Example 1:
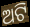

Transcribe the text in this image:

ଅଟି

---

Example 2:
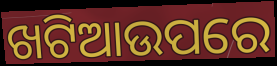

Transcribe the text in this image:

ଖଟିଆଉପରେ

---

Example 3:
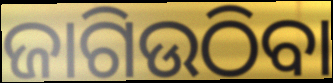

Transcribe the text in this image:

ଜାଗିଉଠିବା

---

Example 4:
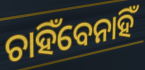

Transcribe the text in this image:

ଚାହିଁବେନାହିଁ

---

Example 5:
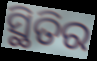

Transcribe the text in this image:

ସ୍ଥିତିର